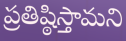
ప్రతిష్ఠిస్తామని